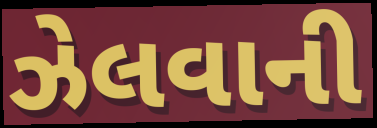
ઝેલવાની